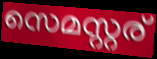
സെമസ്റ്റര്